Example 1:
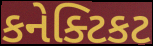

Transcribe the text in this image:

કનેક્ટિકટ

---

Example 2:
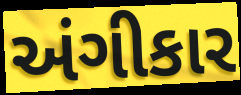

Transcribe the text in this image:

અંગીકાર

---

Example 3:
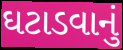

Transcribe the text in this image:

ઘટાડવાનું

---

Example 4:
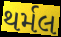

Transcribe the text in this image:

થર્મલ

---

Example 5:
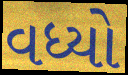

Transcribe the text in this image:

વધ્યો